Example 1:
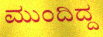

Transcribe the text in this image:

ಮುಂದಿದ್ದ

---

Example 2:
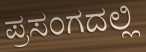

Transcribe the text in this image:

ಪ್ರಸಂಗದಲ್ಲಿ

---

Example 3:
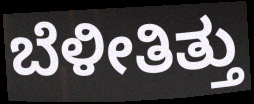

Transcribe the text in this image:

ಬೆಳೀತಿತ್ತು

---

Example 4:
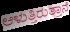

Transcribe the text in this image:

ಆಳುತ್ತಿರುತ್ತಾನೆ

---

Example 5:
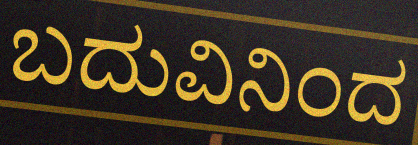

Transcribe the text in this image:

ಬದುವಿನಿಂದ